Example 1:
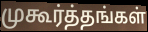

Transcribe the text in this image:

முகூர்த்தங்கள்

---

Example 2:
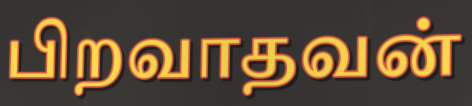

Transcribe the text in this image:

பிறவாதவன்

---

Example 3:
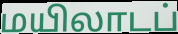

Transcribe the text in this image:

மயிலாடப்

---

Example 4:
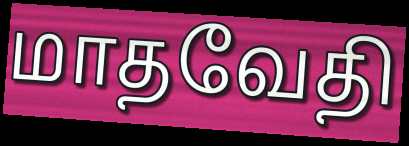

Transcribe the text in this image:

மாதவேதி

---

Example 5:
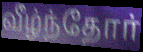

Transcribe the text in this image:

வீழ்ந்தோர்